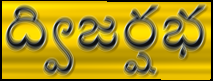
ద్విజర్షభ